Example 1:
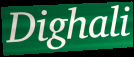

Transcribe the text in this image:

Dighali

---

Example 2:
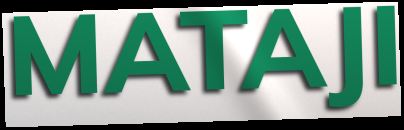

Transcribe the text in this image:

MATAJI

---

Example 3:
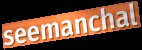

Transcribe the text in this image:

seemanchal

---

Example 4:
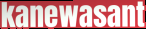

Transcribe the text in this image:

kanewasant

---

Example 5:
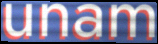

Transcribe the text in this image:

unam